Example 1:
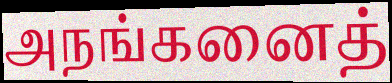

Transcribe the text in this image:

அநங்கனைத்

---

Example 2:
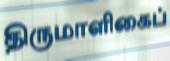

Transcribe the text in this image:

திருமாளிகைப்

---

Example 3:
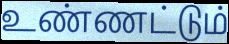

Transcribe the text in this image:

உண்ணட்டும்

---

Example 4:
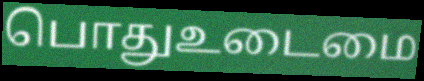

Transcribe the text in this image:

பொதுஉடைமை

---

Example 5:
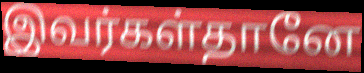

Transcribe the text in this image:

இவர்கள்தானே